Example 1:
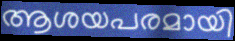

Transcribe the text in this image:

ആശയപരമായി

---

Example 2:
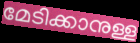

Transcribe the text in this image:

മേടിക്കാനുള്ള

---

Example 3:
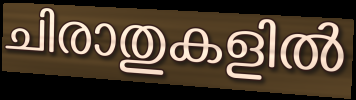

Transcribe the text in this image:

ചിരാതുകളിൽ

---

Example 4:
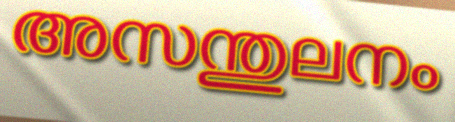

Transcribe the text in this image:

അസന്തുലനം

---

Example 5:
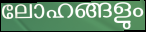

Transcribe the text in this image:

ലോഹങ്ങളും